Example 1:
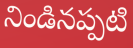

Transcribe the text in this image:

నిండినప్పటి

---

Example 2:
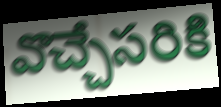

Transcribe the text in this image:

వొచ్చేసరికి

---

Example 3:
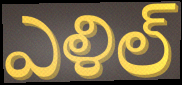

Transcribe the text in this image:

ఎళిల్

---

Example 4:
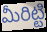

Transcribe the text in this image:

మీరిట్టి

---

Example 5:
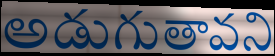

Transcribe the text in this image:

అడుగుతావని